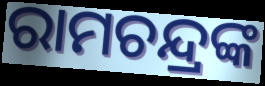
ରାମଚନ୍ଦ୍ରଙ୍କ